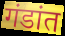
गंडांत